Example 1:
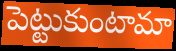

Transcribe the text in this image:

పెట్టుకుంటామా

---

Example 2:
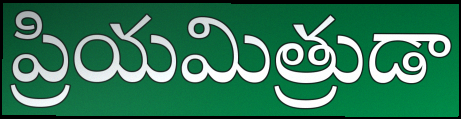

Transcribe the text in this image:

ప్రియమిత్రుడా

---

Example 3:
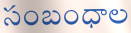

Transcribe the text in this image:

సంబంధాల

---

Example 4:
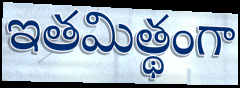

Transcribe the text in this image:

ఇతమిత్థంగా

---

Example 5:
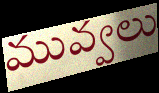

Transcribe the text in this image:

మువ్వలు